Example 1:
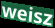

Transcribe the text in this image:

weisz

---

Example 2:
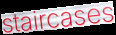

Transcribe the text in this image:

staircases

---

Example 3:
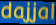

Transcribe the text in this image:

dajjal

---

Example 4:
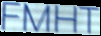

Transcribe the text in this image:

FMHT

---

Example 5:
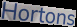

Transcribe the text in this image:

Hortons